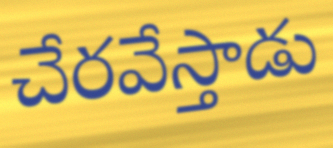
చేరవేస్తాడు